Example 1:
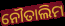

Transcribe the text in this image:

ନୌତାଲିମ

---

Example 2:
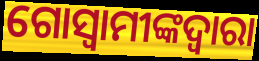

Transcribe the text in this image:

ଗୋସ୍ୱାମୀଙ୍କଦ୍ୱାରା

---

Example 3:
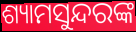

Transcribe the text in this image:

ଶ୍ୟାମସୁନ୍ଦରଙ୍କ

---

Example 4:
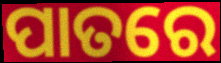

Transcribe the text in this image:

ପାତରେ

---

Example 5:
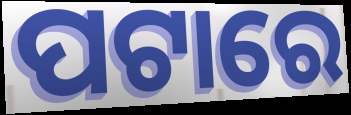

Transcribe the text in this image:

ପଟାରେ